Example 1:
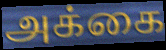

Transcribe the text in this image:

அக்கை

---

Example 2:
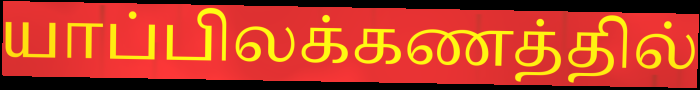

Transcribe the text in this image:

யாப்பிலக்கணத்தில்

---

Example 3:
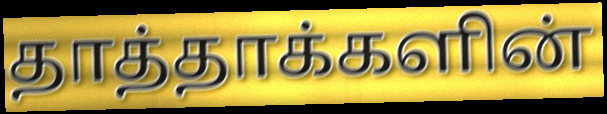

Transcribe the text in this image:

தாத்தாக்களின்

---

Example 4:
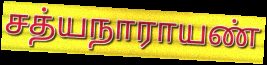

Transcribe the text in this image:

சத்யநாராயண்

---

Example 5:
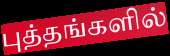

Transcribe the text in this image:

புத்தங்களில்